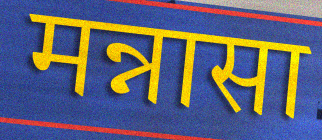
मन्नासा